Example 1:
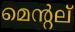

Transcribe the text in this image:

മെന്റല്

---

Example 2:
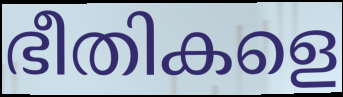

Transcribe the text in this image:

ഭീതികളെ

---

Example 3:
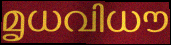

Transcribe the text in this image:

മൃധവിധൗ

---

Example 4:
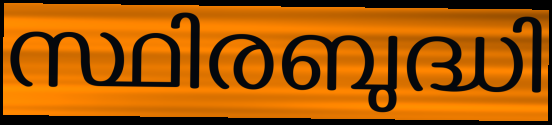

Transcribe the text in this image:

സ്ഥിരബുദ്ധി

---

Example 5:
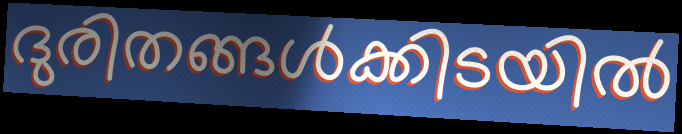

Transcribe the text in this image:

ദുരിതങ്ങൾക്കിടയിൽ